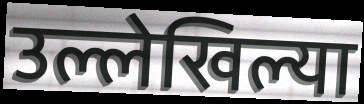
उल्लेखिल्या